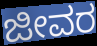
ಜೀವರ